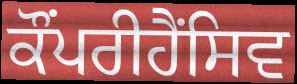
ਕੌਂਪਰੀਹੈਂਸਿਵ